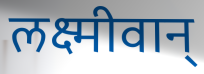
लक्ष्मीवान्